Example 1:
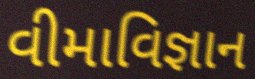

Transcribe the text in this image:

વીમાવિજ્ઞાન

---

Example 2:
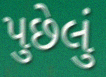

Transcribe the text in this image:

પુછેલું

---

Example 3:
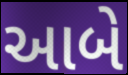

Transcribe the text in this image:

આબે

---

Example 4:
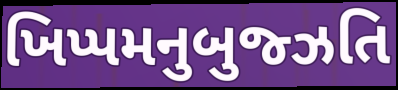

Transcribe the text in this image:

ખિપ્પમનુબુજ્ઝતિ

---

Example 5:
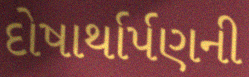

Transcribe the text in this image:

દોષાર્થાર્પણની